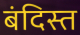
बंदिस्त